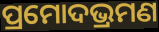
ପ୍ରମୋଦଭ୍ରମଣ